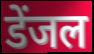
डेंजल